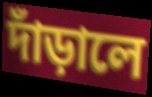
দাঁড়ালে